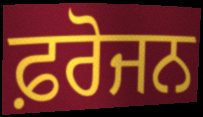
ਫ਼ਰੋਜਨ